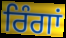
ਰਿੰਗਾਂ